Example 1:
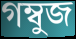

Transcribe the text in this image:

গম্বুজ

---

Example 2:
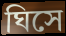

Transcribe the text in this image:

ঘিসে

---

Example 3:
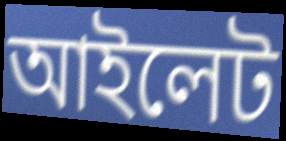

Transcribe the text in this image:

আইলেট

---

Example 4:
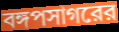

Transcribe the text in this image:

বঙ্গপসাগরের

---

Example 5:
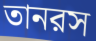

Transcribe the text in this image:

তানরস